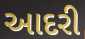
આદરી